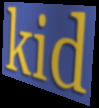
kid